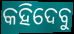
କହିଦେବୁ